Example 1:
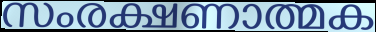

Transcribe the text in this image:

സംരക്ഷണാത്മക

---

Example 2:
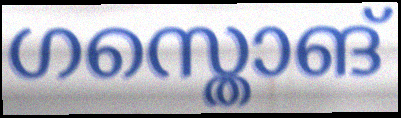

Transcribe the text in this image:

ഗസ്തൊങ്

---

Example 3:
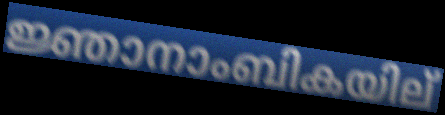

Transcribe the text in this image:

ജ്ഞാനാംബികയില്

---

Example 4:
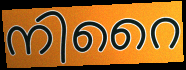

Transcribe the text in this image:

നിറൈ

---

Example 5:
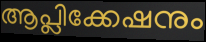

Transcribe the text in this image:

ആപ്ലിക്കേഷനും